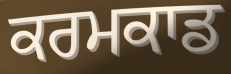
ਕਰਮਕਾਡ